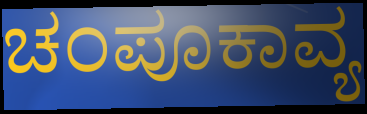
ಚಂಪೂಕಾವ್ಯ